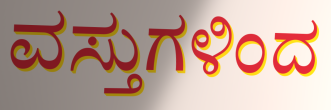
ವಸ್ತುಗಳಿಂದ